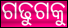
ଗଢୁଗକୁ